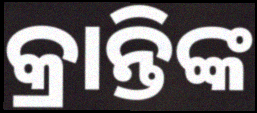
କ୍ରାନ୍ତିଙ୍କ